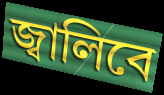
জ্বালিবে